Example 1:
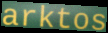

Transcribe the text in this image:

arktos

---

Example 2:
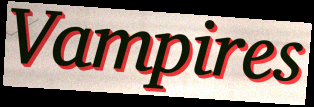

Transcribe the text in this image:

Vampires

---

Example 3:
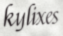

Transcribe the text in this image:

kylixes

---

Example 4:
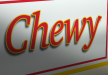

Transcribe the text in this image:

Chewy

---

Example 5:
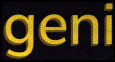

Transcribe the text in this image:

geni